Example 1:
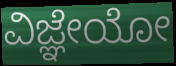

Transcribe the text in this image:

ವಿಜ್ಞೇಯೋ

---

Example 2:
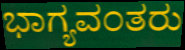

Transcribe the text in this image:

ಭಾಗ್ಯವಂತರು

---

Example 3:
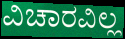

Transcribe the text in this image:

ವಿಚಾರವಿಲ್ಲ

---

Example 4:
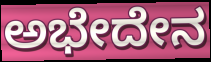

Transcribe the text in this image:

ಅಭೇದೇನ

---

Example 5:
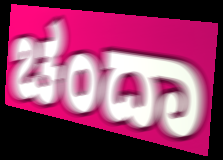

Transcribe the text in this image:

ಚಂದಾ